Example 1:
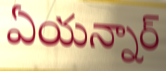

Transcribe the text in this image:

ఏయన్నార్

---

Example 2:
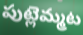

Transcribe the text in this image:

పుట్లెమ్మట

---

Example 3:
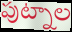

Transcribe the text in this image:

పుట్నాల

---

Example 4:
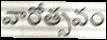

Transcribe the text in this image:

వారోత్సవం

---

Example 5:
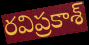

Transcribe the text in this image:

రవిప్రకాశ్